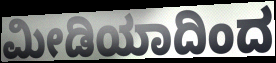
ಮೀಡಿಯಾದಿಂದ